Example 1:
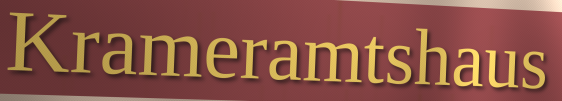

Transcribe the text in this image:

Krameramtshaus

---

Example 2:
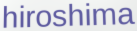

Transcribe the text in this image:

hiroshima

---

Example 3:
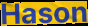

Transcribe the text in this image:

Hason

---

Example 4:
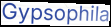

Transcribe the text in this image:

Gypsophila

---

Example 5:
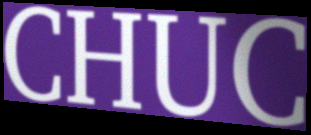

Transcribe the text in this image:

CHUC